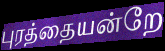
புரத்தையன்றே